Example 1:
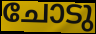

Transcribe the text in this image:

ചോടു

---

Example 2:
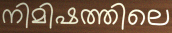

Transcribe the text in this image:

നിമിഷത്തിലെ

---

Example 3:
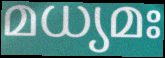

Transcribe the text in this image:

മധ്യമഃ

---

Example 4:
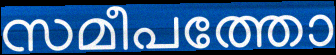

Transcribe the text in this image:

സമീപത്തോ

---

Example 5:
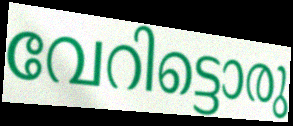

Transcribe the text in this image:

വേറിട്ടൊരു